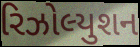
રિઝોલ્યુશન